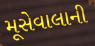
મૂસેવાલાની